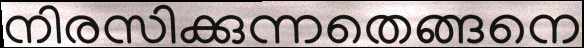
നിരസിക്കുന്നതെങ്ങനെ